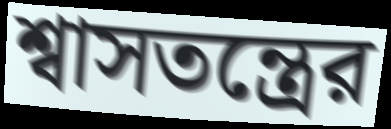
শ্বাসতন্ত্রের